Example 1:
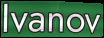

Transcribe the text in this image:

Ivanov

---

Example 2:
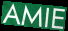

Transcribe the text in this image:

AMIE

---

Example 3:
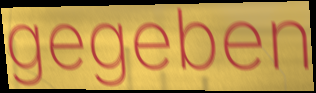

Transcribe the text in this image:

gegeben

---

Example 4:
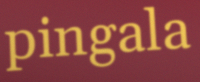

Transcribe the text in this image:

pingala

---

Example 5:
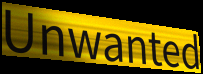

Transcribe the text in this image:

Unwanted